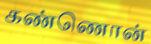
கண்ணொன்